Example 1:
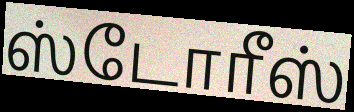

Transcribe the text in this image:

ஸ்டோரீஸ்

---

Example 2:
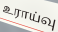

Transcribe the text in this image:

உராய்வு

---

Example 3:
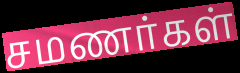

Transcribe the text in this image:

சமணர்கள்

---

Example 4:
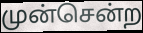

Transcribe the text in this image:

முன்சென்ற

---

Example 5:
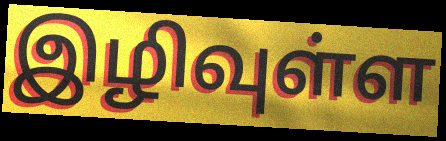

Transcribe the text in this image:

இழிவுள்ள